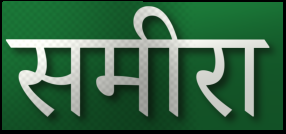
समीरा